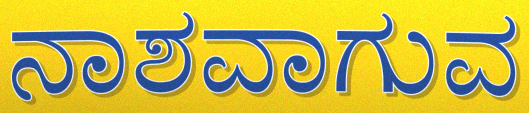
ನಾಶವಾಗುವ